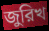
জুরিখ